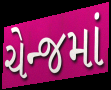
ચેન્જમાં